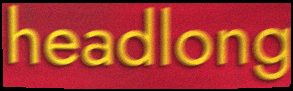
headlong